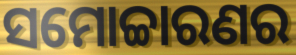
ସମୋଚ୍ଚାରଣର